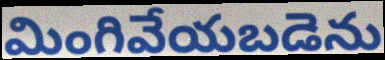
మింగివేయబడెను